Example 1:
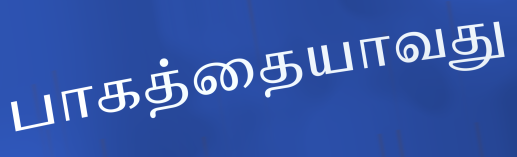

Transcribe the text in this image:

பாகத்தையாவது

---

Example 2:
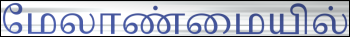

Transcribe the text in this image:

மேலாண்மையில்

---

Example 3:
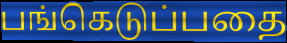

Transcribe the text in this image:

பங்கெடுப்பதை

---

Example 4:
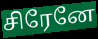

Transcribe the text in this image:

சிரேனே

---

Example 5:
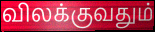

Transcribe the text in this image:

விலக்குவதும்